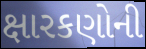
ક્ષારકણોની